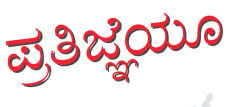
ಪ್ರತಿಜ್ಞೆಯೂ